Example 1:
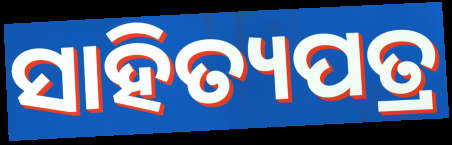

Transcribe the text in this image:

ସାହିତ୍ୟପତ୍ର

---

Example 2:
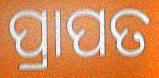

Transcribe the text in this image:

ପ୍ରାପତ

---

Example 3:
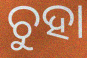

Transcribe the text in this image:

ଚୁହା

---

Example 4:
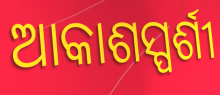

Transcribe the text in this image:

ଆକାଶସ୍ପର୍ଶୀ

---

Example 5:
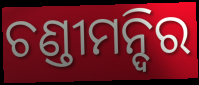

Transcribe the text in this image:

ଚଣ୍ଡୀମନ୍ଦିର